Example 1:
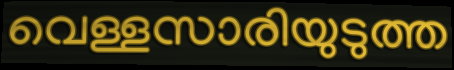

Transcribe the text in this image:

വെള്ളസാരിയുടുത്ത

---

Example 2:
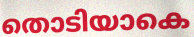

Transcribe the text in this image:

തൊടിയാകെ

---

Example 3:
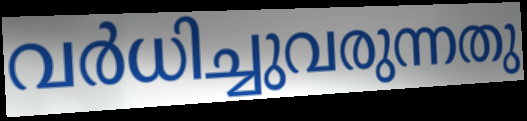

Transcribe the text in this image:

വർധിച്ചുവരുന്നതു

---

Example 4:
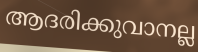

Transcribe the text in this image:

ആദരിക്കുവാനല്ല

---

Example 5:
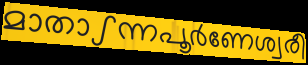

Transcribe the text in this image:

മാതാഽന്നപൂർണേശ്വരീ